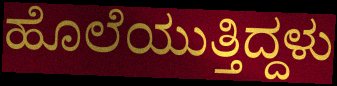
ಹೊಲೆಯುತ್ತಿದ್ದಳು